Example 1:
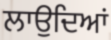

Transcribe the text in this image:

ਲਾਉਦਿਆਂ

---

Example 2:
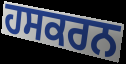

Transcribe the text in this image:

ਹਸਕਰਨ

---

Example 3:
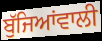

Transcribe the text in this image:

ਬੁੱਜਿਆਂਵਾਲੀ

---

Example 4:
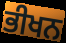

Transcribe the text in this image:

ਭੀਖਨ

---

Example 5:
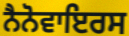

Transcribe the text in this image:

ਨੈਨੋਵਾਇਰਸ